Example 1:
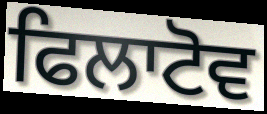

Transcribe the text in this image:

ਫਿਲਾਟੋਵ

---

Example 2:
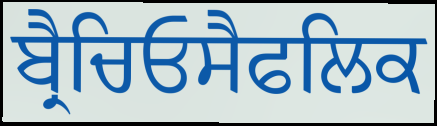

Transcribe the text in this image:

ਬ੍ਰੈਚਿਓਸੈਫਲਿਕ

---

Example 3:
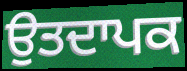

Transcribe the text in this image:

ਉਤਦਾਪਕ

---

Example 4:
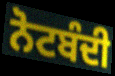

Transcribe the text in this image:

ਨੋਟਬੰਦੀ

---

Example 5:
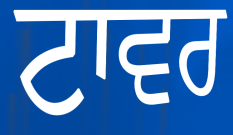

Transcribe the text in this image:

ਟਾਵਰ